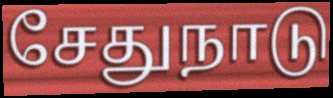
சேதுநாடு